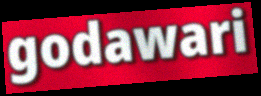
godawari